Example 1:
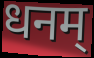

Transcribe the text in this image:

धनम्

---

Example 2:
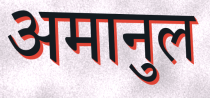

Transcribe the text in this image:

अमानुल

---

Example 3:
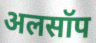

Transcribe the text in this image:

अलसॉप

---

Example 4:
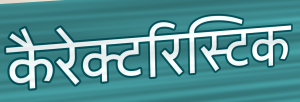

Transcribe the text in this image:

कैरेक्टरिस्टिक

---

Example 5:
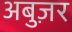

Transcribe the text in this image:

अबुज़र